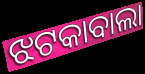
ଝଟକାବାଲା